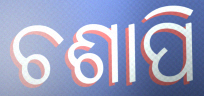
ଚଶାପି